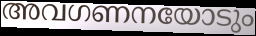
അവഗണനയോടും